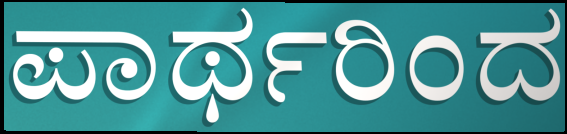
ಪಾರ್ಥರಿಂದ